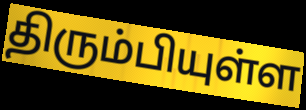
திரும்பியுள்ள